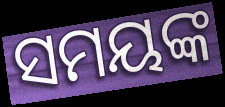
ସମୟଙ୍କ